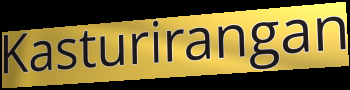
Kasturirangan